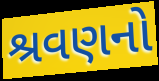
શ્રવણનો